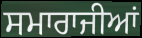
ਸਮਾਰਾਜੀਆਂ